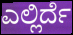
ಎಲ್ಲಿರ್ದೆ